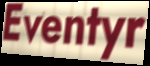
Eventyr